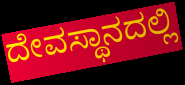
ದೇವಸ್ಥಾನದಲ್ಲಿ